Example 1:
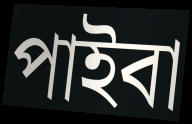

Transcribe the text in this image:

পাইবা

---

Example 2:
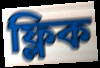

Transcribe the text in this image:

ফ্লিক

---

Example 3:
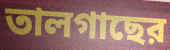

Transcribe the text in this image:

তালগাছের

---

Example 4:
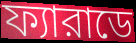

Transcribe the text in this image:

ফ্যারাডে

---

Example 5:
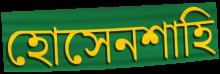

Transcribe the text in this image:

হোসেনশাহি